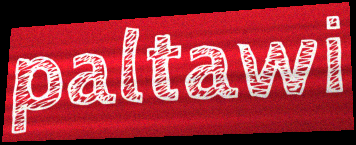
paltawi